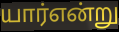
யார்என்று